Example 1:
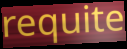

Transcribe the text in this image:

requite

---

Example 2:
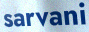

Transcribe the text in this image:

sarvani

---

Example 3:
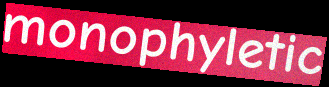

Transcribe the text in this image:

monophyletic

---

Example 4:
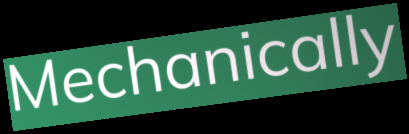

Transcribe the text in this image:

Mechanically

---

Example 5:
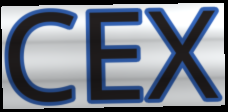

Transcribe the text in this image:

CEX